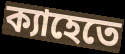
ক্যাহেতে